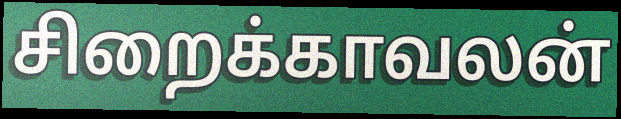
சிறைக்காவலன்